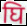
घि